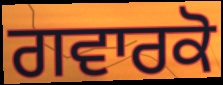
ਗਵਾਰਕੋ